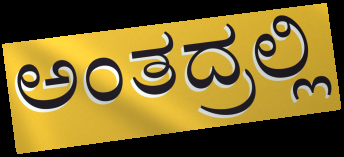
ಅಂತದ್ರಲ್ಲಿ